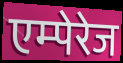
एम्पेरेज